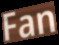
Fan